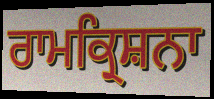
ਰਾਮਕ੍ਰਿਸ਼ਨਾ